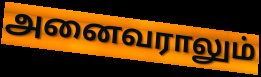
அனைவராலும்